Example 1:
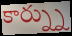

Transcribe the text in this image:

కార్న్ను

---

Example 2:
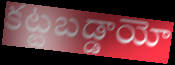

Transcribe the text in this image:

కట్టబడ్డాయో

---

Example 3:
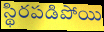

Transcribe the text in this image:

స్థిరపడిపోయి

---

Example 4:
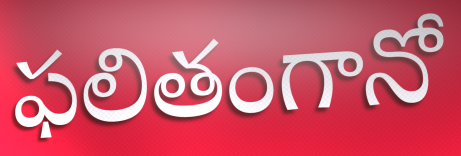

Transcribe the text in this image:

ఫలితంగానో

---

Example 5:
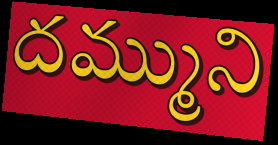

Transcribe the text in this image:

దమ్ముని